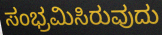
ಸಂಭ್ರಮಿಸಿರುವುದು